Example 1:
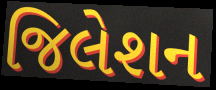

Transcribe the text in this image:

જિલેશન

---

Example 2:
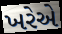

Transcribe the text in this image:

ખરેએ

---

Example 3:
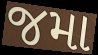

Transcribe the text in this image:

જમા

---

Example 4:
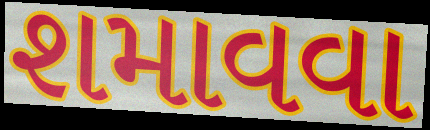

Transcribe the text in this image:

શમાવવા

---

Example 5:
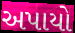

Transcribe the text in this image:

અપાયો